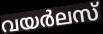
വയർലസ്